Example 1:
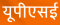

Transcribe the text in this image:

यूपीएसई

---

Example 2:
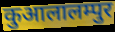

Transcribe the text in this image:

कुआलालम्पुर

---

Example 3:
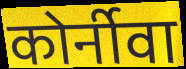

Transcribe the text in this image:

कोर्नीवा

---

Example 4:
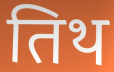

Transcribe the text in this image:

तिथ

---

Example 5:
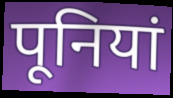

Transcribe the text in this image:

पूनियां